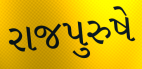
રાજપુરુષે